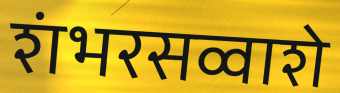
शंभरसव्वाशे